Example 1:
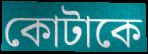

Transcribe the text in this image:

কোটাকে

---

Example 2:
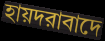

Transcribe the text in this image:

হায়দরাবাদে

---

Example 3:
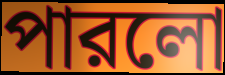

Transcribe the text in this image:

পারলো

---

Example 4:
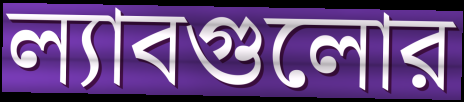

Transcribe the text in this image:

ল্যাবগুলোর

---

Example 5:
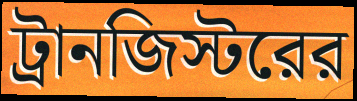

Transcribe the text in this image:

ট্রানজিস্টরের